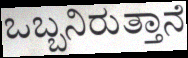
ಒಬ್ಬನಿರುತ್ತಾನೆ